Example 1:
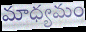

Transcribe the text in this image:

మాధ్యమం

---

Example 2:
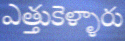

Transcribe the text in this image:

ఎత్తుకెళ్ళారు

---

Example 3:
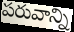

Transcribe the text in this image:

పరువాన్ని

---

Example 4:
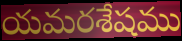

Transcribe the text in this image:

యమరశేషము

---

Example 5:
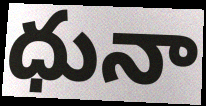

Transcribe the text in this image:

ధునా